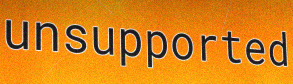
unsupported